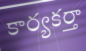
కార్యకర్తా